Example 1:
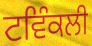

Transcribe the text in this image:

ਟਵਿੰਕਲੀ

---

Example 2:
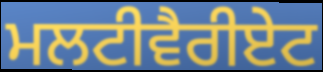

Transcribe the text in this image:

ਮਲਟੀਵੈਰੀਏਟ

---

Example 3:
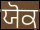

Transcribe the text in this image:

ਯੋਕ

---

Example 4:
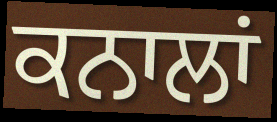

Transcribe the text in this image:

ਕਨਾਲਾਂ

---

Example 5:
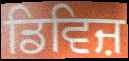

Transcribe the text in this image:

ਡਿਵਿਜ਼